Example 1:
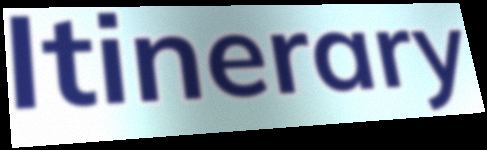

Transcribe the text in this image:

Itinerary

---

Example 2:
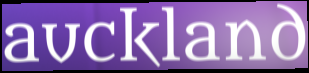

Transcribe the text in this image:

auckland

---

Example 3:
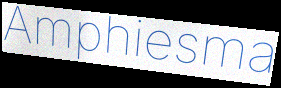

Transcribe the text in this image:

Amphiesma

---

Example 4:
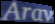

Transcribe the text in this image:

Arav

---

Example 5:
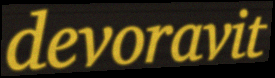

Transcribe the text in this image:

devoravit